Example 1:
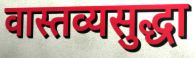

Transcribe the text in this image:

वास्तव्यसुद्धा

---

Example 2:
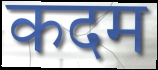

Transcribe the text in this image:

कदम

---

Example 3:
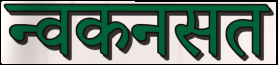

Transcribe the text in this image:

न्वकनसत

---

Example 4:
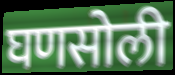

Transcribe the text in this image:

घणसोली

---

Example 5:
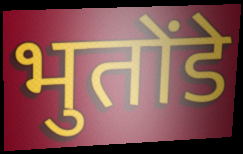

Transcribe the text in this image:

भुतोंडे